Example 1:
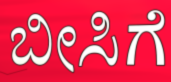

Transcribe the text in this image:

ಬೀಸಿಗೆ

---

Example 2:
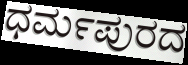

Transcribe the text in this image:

ಧರ್ಮಪುರದ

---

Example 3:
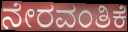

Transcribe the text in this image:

ನೇರವಂತಿಕೆ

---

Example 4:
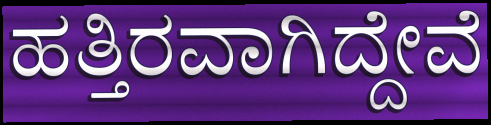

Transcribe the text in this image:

ಹತ್ತಿರವಾಗಿದ್ದೇವೆ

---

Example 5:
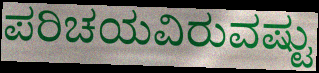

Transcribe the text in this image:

ಪರಿಚಯವಿರುವಷ್ಟು